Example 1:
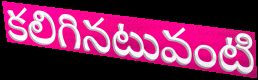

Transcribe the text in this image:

కలిగినటువంటి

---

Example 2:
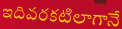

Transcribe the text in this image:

ఇదివరకటిలాగానే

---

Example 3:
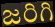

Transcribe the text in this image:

జరిగి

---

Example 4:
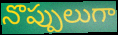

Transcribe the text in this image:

నొప్పులుగా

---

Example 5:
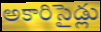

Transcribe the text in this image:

అకారిసైడ్లు